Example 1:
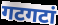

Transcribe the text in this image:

गटगटां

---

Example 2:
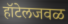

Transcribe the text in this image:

हॉटेलजवळ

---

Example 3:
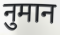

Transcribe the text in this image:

नुमान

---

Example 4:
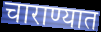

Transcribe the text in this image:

चाराण्यात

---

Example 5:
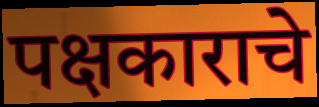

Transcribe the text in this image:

पक्षकाराचे